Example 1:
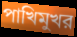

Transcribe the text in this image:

পাখিমুখর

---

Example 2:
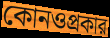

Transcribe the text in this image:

কোনওপ্রকার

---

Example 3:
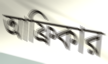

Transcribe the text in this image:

আফ্রিকার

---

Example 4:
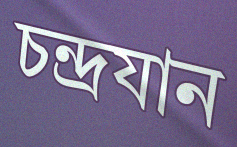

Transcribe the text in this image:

চন্দ্রযান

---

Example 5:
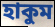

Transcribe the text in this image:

হাকুম